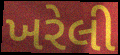
ખરેલી